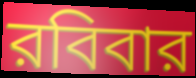
রবিবার